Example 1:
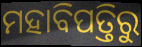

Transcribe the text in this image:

ମହାବିପତ୍ତିରୁ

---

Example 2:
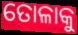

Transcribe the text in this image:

ତୋଳାକୁ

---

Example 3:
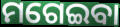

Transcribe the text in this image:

ମଗେଇବା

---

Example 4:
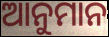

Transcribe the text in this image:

ଆନୁମାନ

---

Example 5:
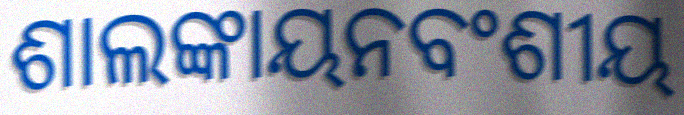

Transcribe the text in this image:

ଶାଲଙ୍କାୟନବଂଶୀୟ